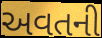
અવતની